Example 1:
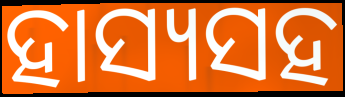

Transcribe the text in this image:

ହାସ୍ୟସହ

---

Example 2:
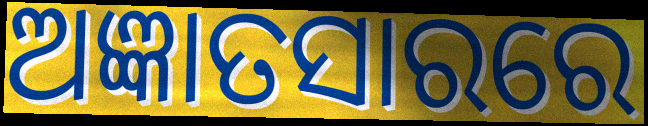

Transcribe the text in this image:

ଅଜ୍ଞାତସାରରେ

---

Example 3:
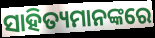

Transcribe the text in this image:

ସାହିତ୍ୟମାନଙ୍କରେ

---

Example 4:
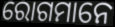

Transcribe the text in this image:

ରୋଗମାନେ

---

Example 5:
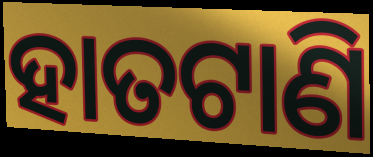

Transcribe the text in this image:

ହାତଟାଣି